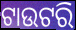
ଟାଉଟରି